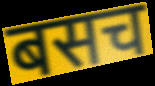
बसच